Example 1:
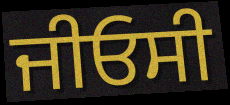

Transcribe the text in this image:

ਜੀਓਸੀ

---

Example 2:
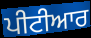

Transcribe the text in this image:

ਪੀਟੀਆਰ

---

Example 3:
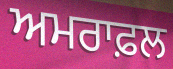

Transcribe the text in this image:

ਅਮਰਾਫ਼ਲ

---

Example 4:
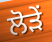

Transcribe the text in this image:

ਲੋੜੇਂ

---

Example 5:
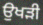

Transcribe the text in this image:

ਉਖੜੀ